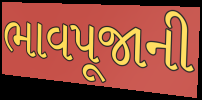
ભાવપૂજાની